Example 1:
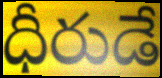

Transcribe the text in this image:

ధీరుడే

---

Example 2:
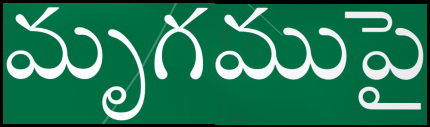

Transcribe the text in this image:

మృగముపై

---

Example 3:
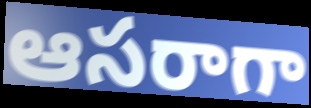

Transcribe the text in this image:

ఆసరాగా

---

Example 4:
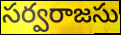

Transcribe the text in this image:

సర్వరాజసు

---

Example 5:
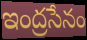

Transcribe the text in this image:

ఇంద్రసేనం